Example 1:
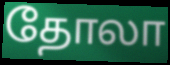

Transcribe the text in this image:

தோலா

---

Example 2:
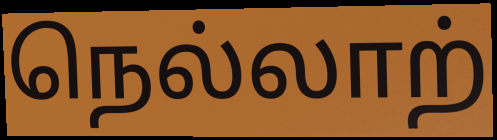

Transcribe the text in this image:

நெல்லாற்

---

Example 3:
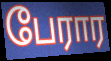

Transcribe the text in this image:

பேரார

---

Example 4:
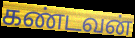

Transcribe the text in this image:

கண்டவன்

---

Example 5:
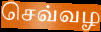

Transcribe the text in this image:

செவ்வழ